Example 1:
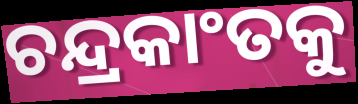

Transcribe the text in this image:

ଚନ୍ଦ୍ରକାଂତକୁ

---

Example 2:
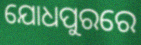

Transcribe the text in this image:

ଯୋଧପୁରରେ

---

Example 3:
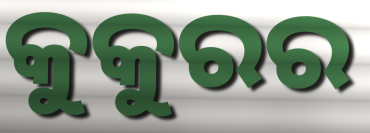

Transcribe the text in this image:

କୁକୁରର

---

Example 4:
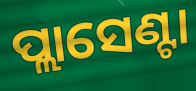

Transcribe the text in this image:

ପ୍ଲାସେଣ୍ଟା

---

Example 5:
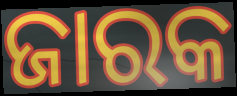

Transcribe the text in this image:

ଜାରକ